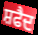
ਸ਼ਫੈਦ